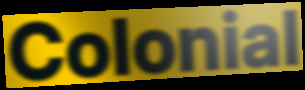
Colonial